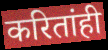
करितांही